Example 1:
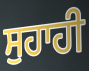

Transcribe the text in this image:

ਸੁਹਾਹੀ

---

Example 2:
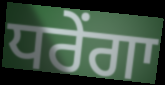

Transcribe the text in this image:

ਧਰੇਂਗਾ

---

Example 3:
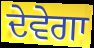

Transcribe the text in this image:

ਦੇਵੇਗਾ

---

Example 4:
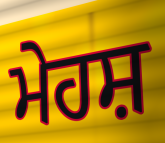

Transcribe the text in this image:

ਮੇਹਸ਼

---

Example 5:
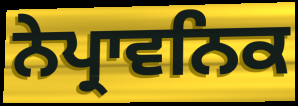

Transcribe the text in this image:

ਨੇਪ੍ਰਾਵਨਿਕ